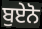
ਬੁਏਨੋ